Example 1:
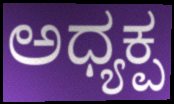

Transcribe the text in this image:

ಅಧ್ಯಕ್ಪ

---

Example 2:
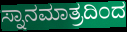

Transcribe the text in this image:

ಸ್ನಾನಮಾತ್ರದಿಂದ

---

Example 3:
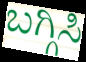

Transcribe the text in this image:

ಬಗ್ಗಿಸಿ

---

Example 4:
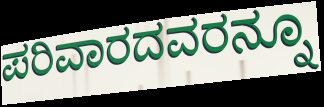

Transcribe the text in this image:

ಪರಿವಾರದವರನ್ನೂ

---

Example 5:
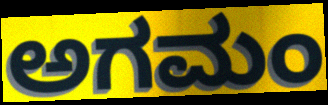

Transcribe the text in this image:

ಅಗಮಂ